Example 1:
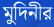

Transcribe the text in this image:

মুদিনীর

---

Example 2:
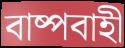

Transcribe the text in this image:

বাষ্পবাহী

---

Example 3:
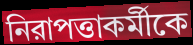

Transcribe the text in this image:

নিরাপত্তাকর্মীকে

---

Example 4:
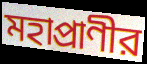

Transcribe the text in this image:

মহাপ্রাণীর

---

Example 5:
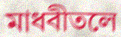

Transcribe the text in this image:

মাধবীতলে